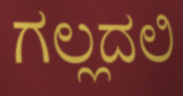
ಗಲ್ಲದಲಿ